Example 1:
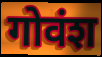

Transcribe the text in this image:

गोवंश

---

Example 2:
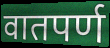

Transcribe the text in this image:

वातपर्ण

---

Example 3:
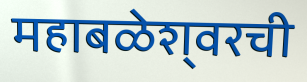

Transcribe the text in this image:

महाबळेश्वरची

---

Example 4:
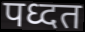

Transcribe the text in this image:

पध्दत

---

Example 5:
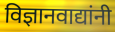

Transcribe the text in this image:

विज्ञानवाद्यांनी